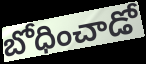
బోధించాడో